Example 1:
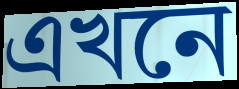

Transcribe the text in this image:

এখনে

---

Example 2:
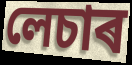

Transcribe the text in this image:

লেচাৰ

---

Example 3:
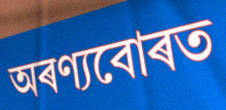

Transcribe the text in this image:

অৰণ্যবোৰত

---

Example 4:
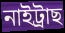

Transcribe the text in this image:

নাইট্ৰাছ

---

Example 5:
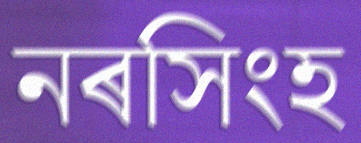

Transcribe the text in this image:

নৰসিংহ